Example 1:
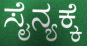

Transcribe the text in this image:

ಸೈನ್ಯಕ್ಕೆ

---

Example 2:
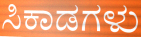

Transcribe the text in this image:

ಸಿಕಾಡಗಳು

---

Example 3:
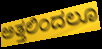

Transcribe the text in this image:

ಅತ್ತಲಿಂದಲೂ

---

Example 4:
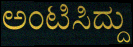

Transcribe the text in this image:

ಅಂಟಿಸಿದ್ದು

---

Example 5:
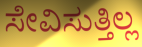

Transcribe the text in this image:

ಸೇವಿಸುತ್ತಿಲ್ಲ